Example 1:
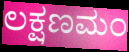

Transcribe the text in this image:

ಲಕ್ಷಣಮಂ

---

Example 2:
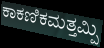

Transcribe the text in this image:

ಕಾಕಣಿಕಮತ್ತಮ್ಪಿ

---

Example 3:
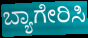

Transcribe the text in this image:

ಬ್ಯಾಗೇರಿಸಿ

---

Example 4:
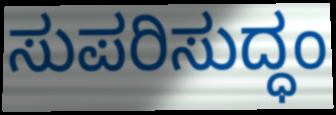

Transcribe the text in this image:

ಸುಪರಿಸುದ್ಧಂ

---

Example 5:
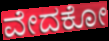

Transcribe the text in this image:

ವೇದಕೋ